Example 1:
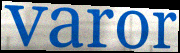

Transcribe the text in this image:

varor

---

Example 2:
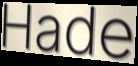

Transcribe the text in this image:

Hade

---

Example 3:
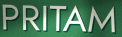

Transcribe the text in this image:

PRITAM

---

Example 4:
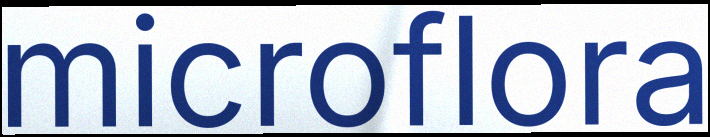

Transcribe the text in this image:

microflora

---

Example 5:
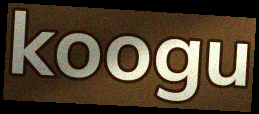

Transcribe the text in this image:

koogu